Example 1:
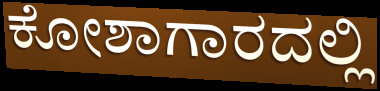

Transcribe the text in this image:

ಕೋಶಾಗಾರದಲ್ಲಿ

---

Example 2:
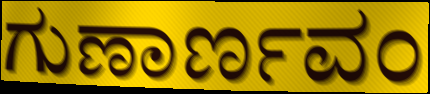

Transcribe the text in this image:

ಗುಣಾರ್ಣವಂ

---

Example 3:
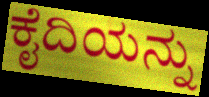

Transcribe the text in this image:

ಕೈದಿಯನ್ನು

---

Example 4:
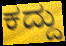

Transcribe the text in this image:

ಕದ್ದು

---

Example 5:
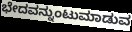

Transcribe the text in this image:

ಭೇದವನ್ನುಂಟುಮಾಡುವ